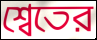
শ্বেতের